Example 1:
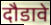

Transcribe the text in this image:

दौडावे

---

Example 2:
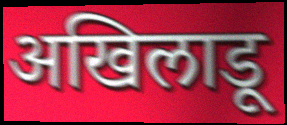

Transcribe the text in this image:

अखिलाडू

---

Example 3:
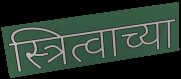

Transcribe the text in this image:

स्त्रित्वाच्या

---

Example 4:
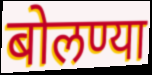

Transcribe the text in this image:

बोलण्या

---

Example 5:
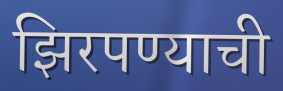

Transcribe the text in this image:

झिरपण्याची